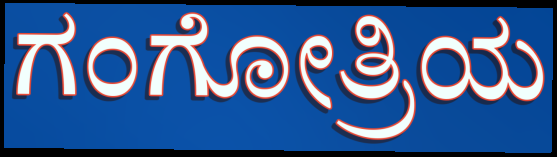
ಗಂಗೋತ್ರಿಯ